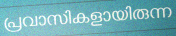
പ്രവാസികളായിരുന്ന